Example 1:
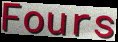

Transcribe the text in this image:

Fours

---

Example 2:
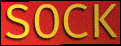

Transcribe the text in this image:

SOCK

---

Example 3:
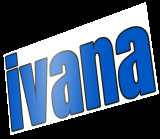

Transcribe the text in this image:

ivana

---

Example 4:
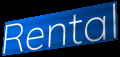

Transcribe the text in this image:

Rental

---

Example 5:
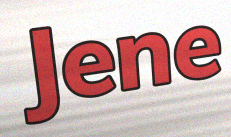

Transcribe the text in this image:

Jene